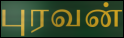
புரவன்